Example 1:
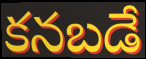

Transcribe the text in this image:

కనబడే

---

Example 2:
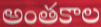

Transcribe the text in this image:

అంతకాల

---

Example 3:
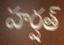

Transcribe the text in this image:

హర్షత్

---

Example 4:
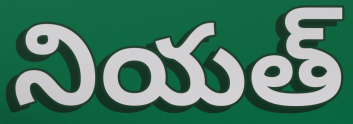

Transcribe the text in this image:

నియత్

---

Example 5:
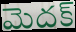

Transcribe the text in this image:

మెదక్